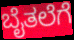
ಬೈತಲೆಗೆ